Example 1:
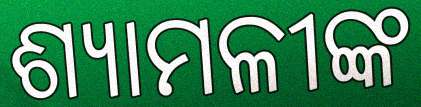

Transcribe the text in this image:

ଶ୍ୟାମଳୀଙ୍କ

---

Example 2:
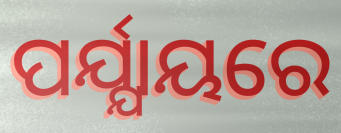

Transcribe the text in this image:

ପର୍ଯ୍ଯାୟରେ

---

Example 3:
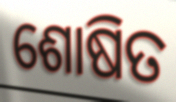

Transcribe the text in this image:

ଶୋଷିତ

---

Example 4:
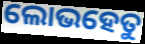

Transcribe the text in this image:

ଲୋଭହେତୁ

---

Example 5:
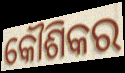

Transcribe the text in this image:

କୌଶିକର